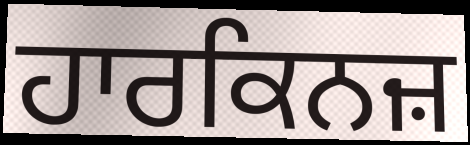
ਹਾਰਕਿਨਜ਼